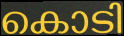
കൊടി